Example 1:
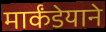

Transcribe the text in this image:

मार्कंडेयाने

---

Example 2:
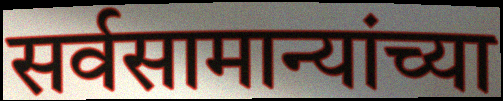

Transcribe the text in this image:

सर्वसामान्यांच्या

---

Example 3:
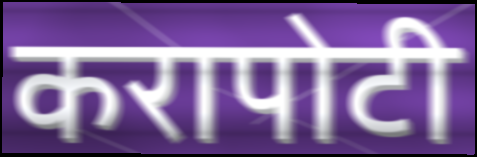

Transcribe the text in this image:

करापोटी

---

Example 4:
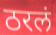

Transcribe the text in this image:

ठरलं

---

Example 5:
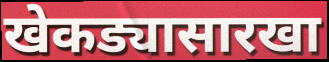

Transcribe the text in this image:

खेकड्यासारखा